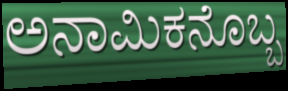
ಅನಾಮಿಕನೊಬ್ಬ